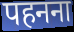
पहनना